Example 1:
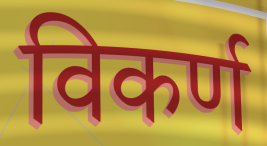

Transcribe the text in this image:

विकर्ण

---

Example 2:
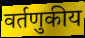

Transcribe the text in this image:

वर्तणुकीय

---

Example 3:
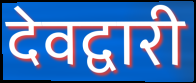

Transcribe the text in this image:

देवद्वारी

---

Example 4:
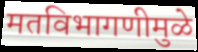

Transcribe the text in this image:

मतविभागणीमुळे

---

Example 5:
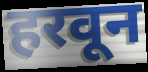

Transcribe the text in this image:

हरवून